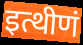
इत्थीणं